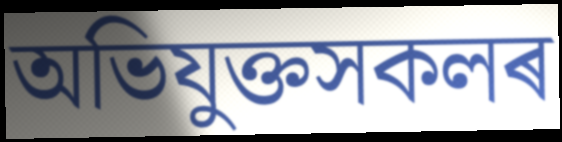
অভিযুক্তসকলৰ